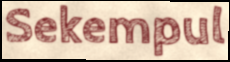
Sekempul